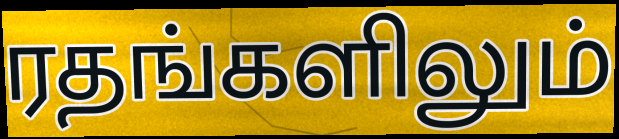
ரதங்களிலும்